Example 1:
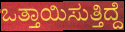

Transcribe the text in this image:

ಒತ್ತಾಯಿಸುತ್ತಿದ್ದೆ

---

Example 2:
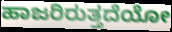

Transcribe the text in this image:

ಹಾಜರಿರುತ್ತದೆಯೋ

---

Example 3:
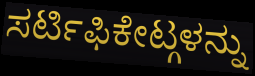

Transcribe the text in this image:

ಸರ್ಟಿಫಿಕೇಟ್ಗಳನ್ನು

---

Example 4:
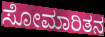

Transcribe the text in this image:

ಸೋಮಾರಿತನ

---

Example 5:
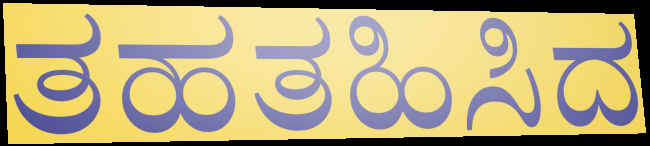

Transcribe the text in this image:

ತಹತಹಿಸಿದ